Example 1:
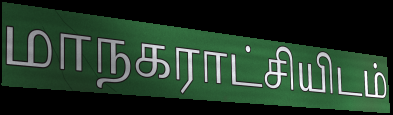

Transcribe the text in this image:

மாநகராட்சியிடம்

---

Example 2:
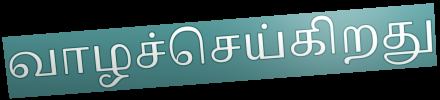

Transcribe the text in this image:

வாழச்செய்கிறது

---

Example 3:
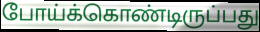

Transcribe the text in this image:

போய்க்கொண்டிருப்பது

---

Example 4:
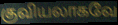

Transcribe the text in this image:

குவியலாகவே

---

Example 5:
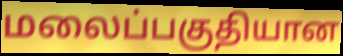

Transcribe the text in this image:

மலைப்பகுதியான